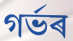
গৰ্ভৰ